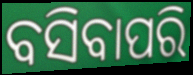
ବସିବାପରି